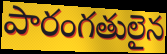
పారంగతులైన